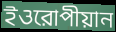
ইওরোপীয়ান